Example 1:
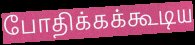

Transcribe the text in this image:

போதிக்கக்கூடிய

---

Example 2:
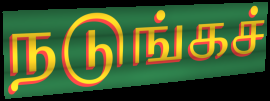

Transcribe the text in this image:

நடுங்கச்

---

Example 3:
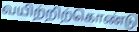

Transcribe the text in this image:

வயிற்றிற்கொண்டு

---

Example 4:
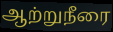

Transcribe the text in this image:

ஆற்றுநீரை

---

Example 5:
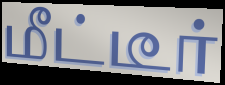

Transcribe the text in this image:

மீட்டீர்